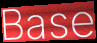
Base